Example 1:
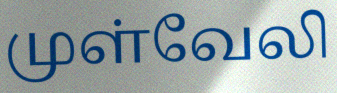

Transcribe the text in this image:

முள்வேலி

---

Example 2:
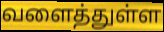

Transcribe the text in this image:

வளைத்துள்ள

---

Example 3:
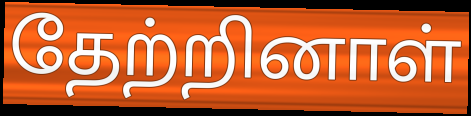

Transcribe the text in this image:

தேற்றினாள்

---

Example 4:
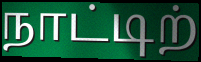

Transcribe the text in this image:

நாட்டிற்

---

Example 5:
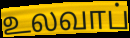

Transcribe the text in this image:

உலவாப்